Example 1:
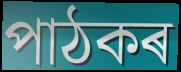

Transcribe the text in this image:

পাঠকৰ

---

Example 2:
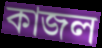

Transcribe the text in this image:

কাজল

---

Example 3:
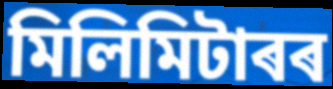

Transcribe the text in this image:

মিলিমিটাৰৰ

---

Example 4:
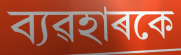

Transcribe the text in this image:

ব্যৱহাৰকে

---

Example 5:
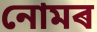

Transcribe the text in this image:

নোমৰ